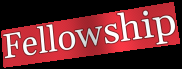
Fellowship